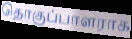
தொகுப்பாளராக